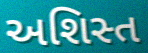
અશિસ્ત